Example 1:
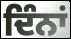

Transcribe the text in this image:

ਦਿੰਨਾਂ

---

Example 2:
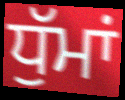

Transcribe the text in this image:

ਧੁੱਮਾਂ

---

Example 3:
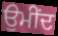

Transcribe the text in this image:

ਉਮੀਂਦ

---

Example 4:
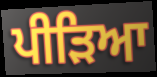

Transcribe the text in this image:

ਪੀੜਿਆ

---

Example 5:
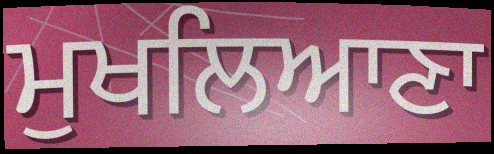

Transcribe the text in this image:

ਮੁਖਲਿਆਣਾ